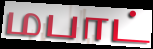
மபாட்